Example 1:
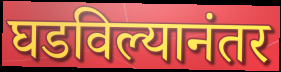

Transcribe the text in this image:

घडविल्यानंतर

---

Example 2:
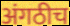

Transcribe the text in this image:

अंगठीच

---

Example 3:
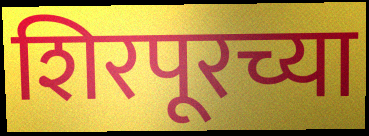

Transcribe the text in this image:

शिरपूरच्या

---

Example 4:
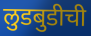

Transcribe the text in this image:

लुडबुडीची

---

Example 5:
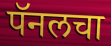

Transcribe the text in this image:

पॅनलचा